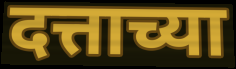
दत्ताच्या